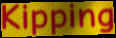
Kipping